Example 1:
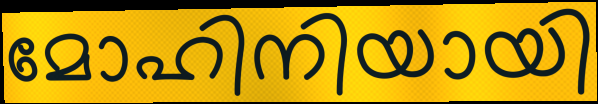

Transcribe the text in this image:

മോഹിനിയായി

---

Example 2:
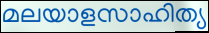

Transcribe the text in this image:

മലയാളസാഹിത്യ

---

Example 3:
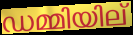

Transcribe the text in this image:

ഡമ്മിയില്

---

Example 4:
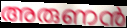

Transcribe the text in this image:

അരുണൻ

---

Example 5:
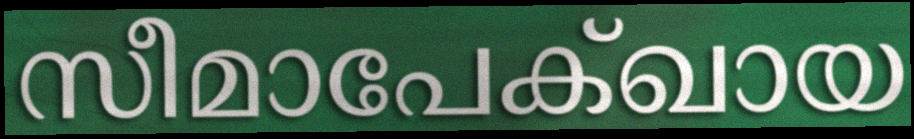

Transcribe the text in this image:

സീമാപേക്ഖായ